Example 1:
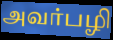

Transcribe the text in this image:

அவர்பழி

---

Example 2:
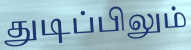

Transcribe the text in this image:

துடிப்பிலும்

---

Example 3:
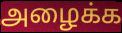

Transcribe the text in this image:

அழைக்க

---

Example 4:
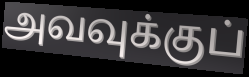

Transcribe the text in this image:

அவவுக்குப்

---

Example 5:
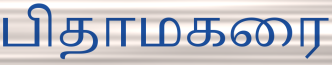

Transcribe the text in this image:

பிதாமகரை